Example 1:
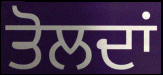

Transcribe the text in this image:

ਤੋਲਦਾਂ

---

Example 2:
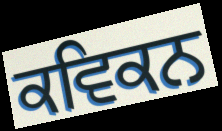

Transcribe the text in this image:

ਕਵਿਕਨ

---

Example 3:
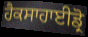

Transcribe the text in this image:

ਹੈਕਸਾਹਾਈਡ੍ਰੋ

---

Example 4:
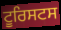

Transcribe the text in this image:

ਟੂਰਿਸਟਸ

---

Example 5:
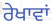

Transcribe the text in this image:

ਰੇਖਾਵਾਂ